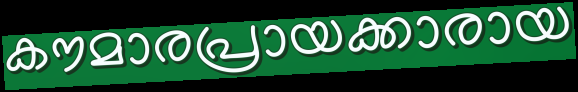
കൗമാരപ്രായക്കാരായ